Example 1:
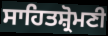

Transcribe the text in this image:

ਸਾਹਿਤਸ਼੍ਰੋਮਣੀ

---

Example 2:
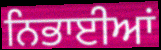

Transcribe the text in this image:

ਨਿਭਾਈਆਂ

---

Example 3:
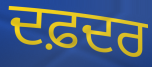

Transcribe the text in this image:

ਦਫ਼ਦਰ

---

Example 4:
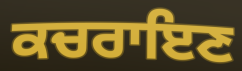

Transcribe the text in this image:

ਕਚਰਾਇਣ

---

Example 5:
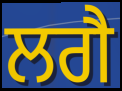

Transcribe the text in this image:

ਲਗੈ